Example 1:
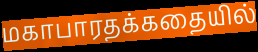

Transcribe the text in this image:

மகாபாரதக்கதையில்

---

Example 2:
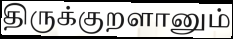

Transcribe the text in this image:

திருக்குறளானும்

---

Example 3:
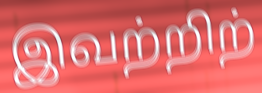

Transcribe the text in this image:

இவற்றிற்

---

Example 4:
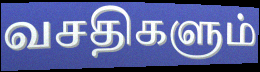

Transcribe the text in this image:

வசதிகளும்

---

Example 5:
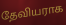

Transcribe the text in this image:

தேவியராக